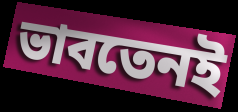
ভাবতেনই